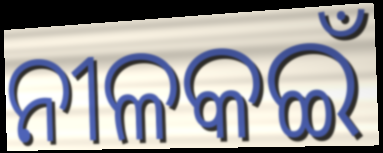
ନୀଳକଇଁ